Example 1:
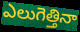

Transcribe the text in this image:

ఎలుగెత్తినా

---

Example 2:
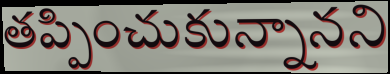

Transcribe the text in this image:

తప్పించుకున్నానని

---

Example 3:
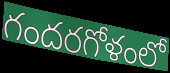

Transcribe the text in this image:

గందరగోళంలో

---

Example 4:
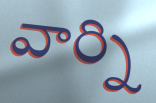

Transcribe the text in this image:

వార్ని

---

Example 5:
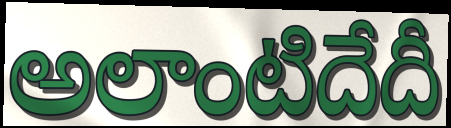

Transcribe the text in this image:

అలాంటిదేదీ